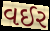
વઈર